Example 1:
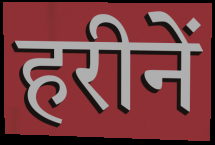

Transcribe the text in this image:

हरीनें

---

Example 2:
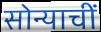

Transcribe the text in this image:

सोन्याचीं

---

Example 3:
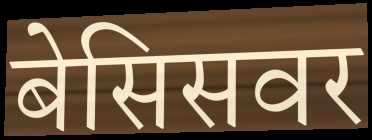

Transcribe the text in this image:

बेसिसवर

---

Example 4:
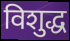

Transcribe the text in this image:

विशुद्ध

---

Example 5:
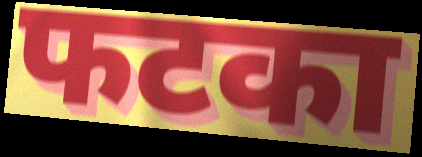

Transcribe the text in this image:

फटका